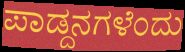
ಪಾಡ್ದನಗಳೆಂದು